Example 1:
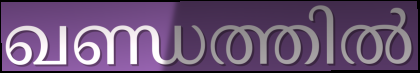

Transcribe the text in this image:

ഖണ്ഡത്തിൽ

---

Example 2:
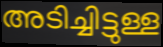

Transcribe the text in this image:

അടിച്ചിട്ടുള്ള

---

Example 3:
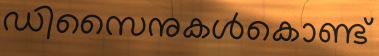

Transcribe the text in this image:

ഡിസൈനുകൾകൊണ്ട്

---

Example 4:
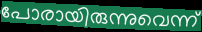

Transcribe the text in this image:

പോരായിരുന്നുവെന്ന്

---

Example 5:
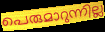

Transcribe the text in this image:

പെരുമാറുന്നില്ല